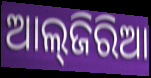
ଆଲ୍‌ଜିରିଆ